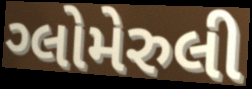
ગ્લોમેરુલી